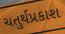
ચતુર્થપ્રકાશ